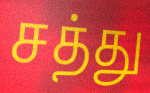
சத்து